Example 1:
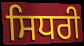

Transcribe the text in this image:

ਸਿਧਰੀ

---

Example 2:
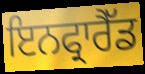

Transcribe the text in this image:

ਇਨਫ੍ਰਾਰੈੱਡ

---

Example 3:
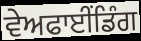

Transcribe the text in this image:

ਵੇਅਫਾਈਂਡਿੰਗ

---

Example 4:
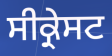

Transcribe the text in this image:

ਸੀਕ੍ਰੇਸਟ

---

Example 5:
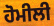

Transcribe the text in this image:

ਹੋਮੀਲੀ